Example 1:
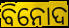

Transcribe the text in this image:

ବିନୋଦ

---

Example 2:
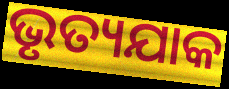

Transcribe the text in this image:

ଭୃତ୍ୟଯାକ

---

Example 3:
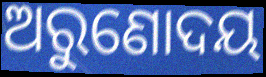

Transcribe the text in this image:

ଅରୁଣୋଦୟ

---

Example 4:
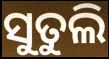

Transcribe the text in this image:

ସୁତୁଲି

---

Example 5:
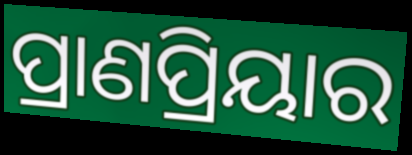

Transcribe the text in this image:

ପ୍ରାଣପ୍ରିୟାର